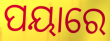
ପୟାରେ